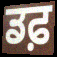
ਡਫ਼